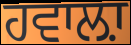
ਹਵਾਲ਼ਾ